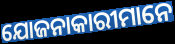
ଯୋଜନାକାରୀମାନେ